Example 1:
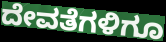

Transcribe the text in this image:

ದೇವತೆಗಳಿಗೂ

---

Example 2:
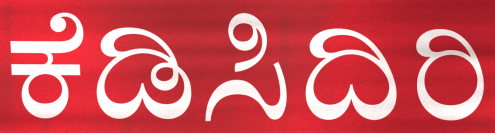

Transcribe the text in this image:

ಕೆಡಿಸಿದಿರಿ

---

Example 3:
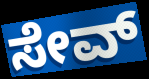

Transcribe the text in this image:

ಸೇವ್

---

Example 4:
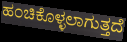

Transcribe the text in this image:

ಹಂಚಿಕೊಳ್ಳಲಾಗುತ್ತದೆ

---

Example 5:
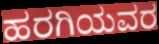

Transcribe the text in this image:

ಹರಗಿಯವರ